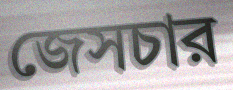
জেসচার